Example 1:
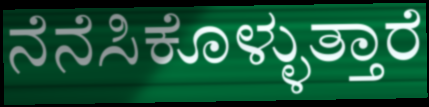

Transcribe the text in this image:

ನೆನೆಸಿಕೊಳ್ಳುತ್ತಾರೆ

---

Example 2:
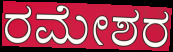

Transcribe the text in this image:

ರಮೇಶರ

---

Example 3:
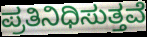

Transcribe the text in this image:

ಪ್ರತಿನಿಧಿಸುತ್ತವೆ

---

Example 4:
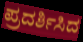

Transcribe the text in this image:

ಪ್ರದರ್ಶಿಸಿದ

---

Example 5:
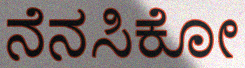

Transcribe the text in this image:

ನೆನಸಿಕೋ